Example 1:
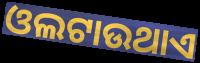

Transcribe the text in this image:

ଓଲଟାଉଥାଏ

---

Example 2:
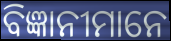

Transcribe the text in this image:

ବିଜ୍ଞାନୀମାନେ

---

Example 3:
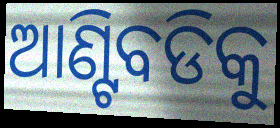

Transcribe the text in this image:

ଆଣ୍ଟିବଡିକୁ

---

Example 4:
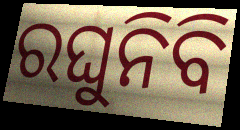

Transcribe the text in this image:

ରଘୁନିବି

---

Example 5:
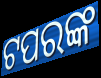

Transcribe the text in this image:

ଟପରଙ୍କ